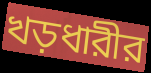
খড়ধারীর